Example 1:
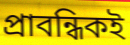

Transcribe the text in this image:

প্রাবন্ধিকই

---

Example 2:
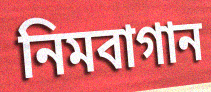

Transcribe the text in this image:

নিমবাগান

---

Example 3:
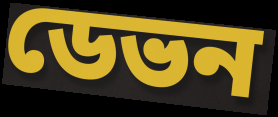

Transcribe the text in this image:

ডেভন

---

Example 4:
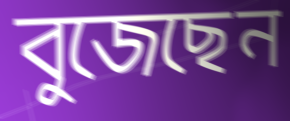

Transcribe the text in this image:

বুজেছেন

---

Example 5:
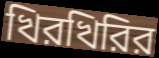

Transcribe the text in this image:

খিরখিরির